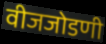
वीजजोडणी